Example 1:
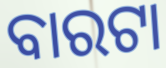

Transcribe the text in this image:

ବାରଟା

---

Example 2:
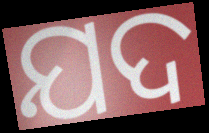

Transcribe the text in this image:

ଯଦ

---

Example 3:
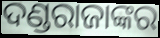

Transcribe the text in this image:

ଦଣ୍ଡରାଜାଙ୍କର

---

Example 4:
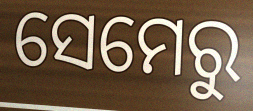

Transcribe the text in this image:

ସେମେରୁ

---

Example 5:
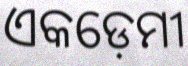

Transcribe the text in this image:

ଏକଡ଼େମୀ